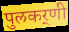
पुलकर्णी